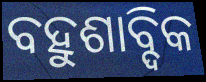
ବହୁଶାବ୍ଦିକ